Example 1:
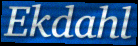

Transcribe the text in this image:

Ekdahl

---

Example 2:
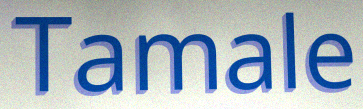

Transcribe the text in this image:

Tamale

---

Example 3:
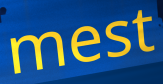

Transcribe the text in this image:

mest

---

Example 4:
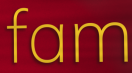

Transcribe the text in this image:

fam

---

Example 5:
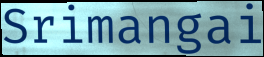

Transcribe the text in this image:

Srimangai